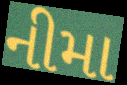
નીમા